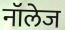
नॉलेज